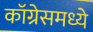
कॉग्रेसमध्ये